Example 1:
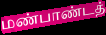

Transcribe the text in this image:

மண்பாண்டத்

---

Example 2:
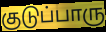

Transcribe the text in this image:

குடுப்பாரு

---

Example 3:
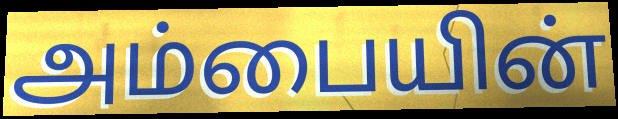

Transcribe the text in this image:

அம்பையின்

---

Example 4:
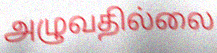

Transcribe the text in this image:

அழுவதில்லை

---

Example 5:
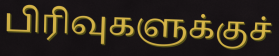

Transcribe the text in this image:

பிரிவுகளுக்குச்